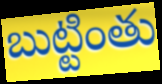
బుట్టింతు